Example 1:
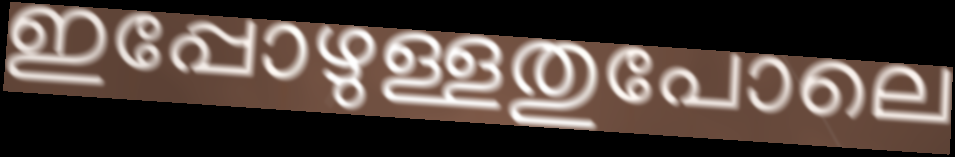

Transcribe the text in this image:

ഇപ്പോഴുള്ളതുപോലെ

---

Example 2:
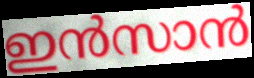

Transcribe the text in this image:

ഇൻസാൻ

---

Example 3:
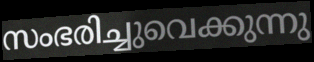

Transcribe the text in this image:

സംഭരിച്ചുവെക്കുന്നു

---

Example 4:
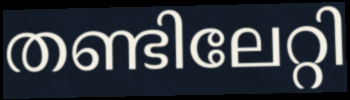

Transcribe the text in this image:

തണ്ടിലേറ്റി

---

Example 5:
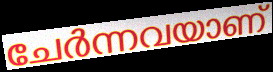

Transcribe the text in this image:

ചേർന്നവയാണ്